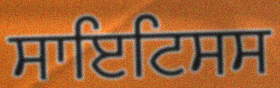
ਸਾਇਟਿਸਸ